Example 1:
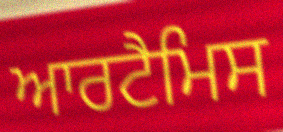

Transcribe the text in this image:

ਆਰਟੈਮਿਸ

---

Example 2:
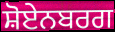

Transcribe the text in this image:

ਸ਼ੋਏਨਬਰਗ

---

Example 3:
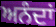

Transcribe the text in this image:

ਅਨੰਦਾਂ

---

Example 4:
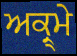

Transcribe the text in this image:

ਅਕ੍ਰ੍ਮੇ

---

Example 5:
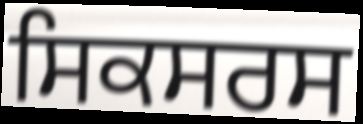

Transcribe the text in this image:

ਸਿਕਸਰਸ